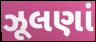
ઝૂલણાં